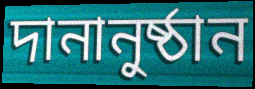
দানানুষ্ঠান